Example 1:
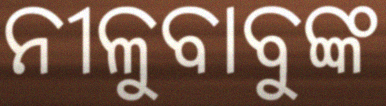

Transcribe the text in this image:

ନୀଳୁବାବୁଙ୍କ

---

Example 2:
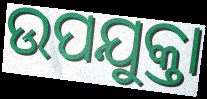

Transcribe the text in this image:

ଉପଯୁକ୍ତା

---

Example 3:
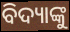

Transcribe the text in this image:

ବିଦ୍ୟାଙ୍କୁ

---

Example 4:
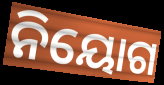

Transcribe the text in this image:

ନିୟୋଗ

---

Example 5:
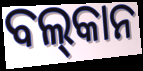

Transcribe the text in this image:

ବଲ୍‌କାନ